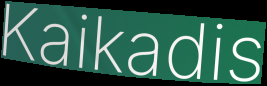
Kaikadis